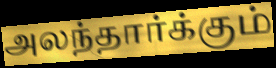
அலந்தார்க்கும்